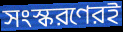
সংস্করণেরই